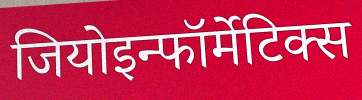
जियोइन्फॉर्मेटिक्स